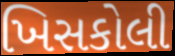
ખિસકોલી